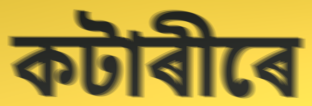
কটাৰীৰে